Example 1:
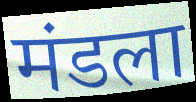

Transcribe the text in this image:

मंडला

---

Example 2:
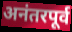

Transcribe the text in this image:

अनंतरपूर्व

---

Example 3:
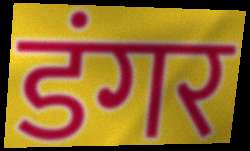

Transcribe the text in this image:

डंगर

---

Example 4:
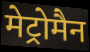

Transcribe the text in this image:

मेट्रोमैन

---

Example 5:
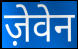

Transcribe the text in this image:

ज़ेवेन